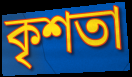
কৃশতা